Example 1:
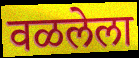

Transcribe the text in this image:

वळलेला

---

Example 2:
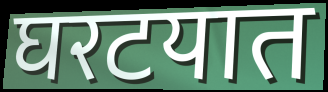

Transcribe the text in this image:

घरटयात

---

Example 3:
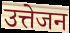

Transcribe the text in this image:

उत्तेजन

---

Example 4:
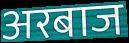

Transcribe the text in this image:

अरबाज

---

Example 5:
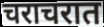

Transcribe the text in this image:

चराचरात